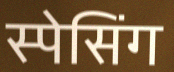
स्पेसिंग